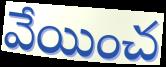
వేయించ